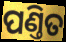
ପଣ୍ତିତ